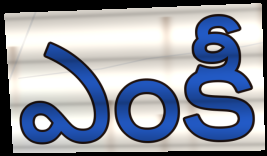
ఎంకీ